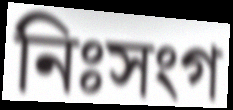
নিঃসংগ